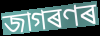
জাগৰণৰ